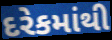
દરેકમાંથી